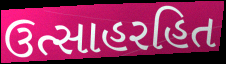
ઉત્સાહરહિત